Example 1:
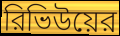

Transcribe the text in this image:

রিভিউয়ের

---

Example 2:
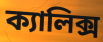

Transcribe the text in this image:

ক্যালিক্স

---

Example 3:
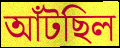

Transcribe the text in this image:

আঁটছিল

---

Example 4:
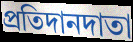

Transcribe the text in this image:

প্রতিদানদাতা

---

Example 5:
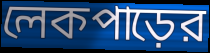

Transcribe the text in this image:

লেকপাড়ের